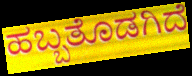
ಹಬ್ಬತೊಡಗಿದೆ